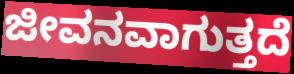
ಜೀವನವಾಗುತ್ತದೆ